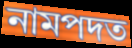
নামপদত